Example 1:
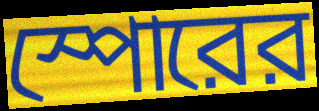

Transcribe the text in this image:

স্পোরের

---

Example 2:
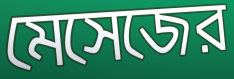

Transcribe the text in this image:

মেসেজের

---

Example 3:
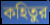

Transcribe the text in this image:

কহিতুর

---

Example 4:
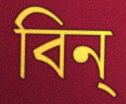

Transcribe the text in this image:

বিন্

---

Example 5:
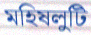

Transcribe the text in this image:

মহিষলুটি